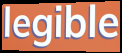
legible